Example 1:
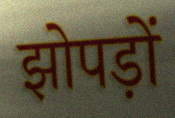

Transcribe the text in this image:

झोपड़ों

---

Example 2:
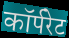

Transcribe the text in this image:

कॉर्परेट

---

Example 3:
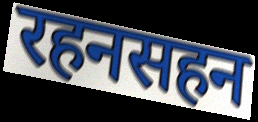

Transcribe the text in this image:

रहनसहन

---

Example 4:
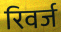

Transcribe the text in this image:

रिवर्ज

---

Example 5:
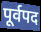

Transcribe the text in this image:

पूर्वपद